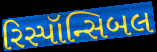
રિસ્પૉન્સિબલ